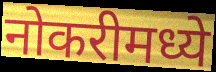
नोकरीमध्ये